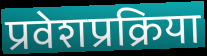
प्रवेशप्रक्रिया